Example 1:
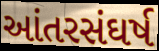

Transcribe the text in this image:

આંતરસંઘર્ષ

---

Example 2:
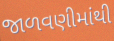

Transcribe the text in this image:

જાળવણીમાંથી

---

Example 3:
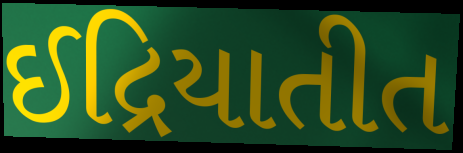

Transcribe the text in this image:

ઈદ્રિયાતીત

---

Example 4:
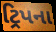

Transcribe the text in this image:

ટ્રિપના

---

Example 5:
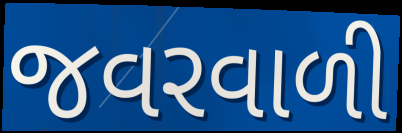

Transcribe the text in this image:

જવરવાળી